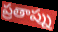
ప్రతాప్ను